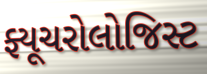
ફ્યૂચરોલોજિસ્ટ